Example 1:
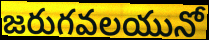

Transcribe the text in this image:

జరుగవలయునో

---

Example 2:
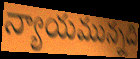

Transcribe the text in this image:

న్యాయమున్నది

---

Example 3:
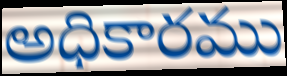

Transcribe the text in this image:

అధికారము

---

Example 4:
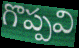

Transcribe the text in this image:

గొప్పవి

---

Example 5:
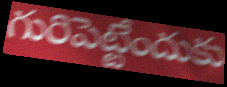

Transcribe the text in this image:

గురిపెట్టేందుకు